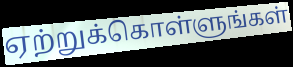
ஏற்றுக்கொள்ளுங்கள்